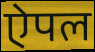
ऐपल